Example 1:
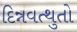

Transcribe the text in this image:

દિન્નવત્થુતો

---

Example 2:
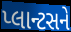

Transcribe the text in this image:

પ્લાન્ટસને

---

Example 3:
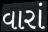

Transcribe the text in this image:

વારાં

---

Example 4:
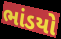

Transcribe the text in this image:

ભાંડયો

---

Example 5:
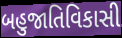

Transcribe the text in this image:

બહુજાતિવિકાસી